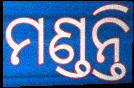
ମଣ୍ଡନ୍ତି